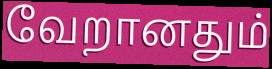
வேறானதும்